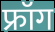
फ्रॉग